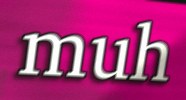
muh